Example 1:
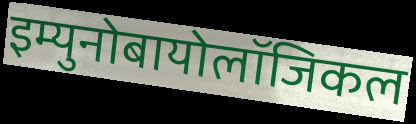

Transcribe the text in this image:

इम्युनोबायोलॉजिकल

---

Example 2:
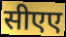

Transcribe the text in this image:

सीएए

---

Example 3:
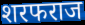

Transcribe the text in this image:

शरफराज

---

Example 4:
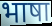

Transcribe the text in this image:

भाषा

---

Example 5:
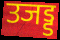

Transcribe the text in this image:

उजड्ड